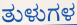
ತುಳುಗಳ